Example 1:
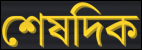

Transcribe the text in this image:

শেষদিক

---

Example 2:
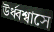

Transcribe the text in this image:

উর্ধ্বশ্বাসে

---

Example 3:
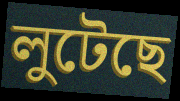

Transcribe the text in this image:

লুটেছে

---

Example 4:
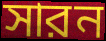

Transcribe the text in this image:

সারন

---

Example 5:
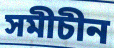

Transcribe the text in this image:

সমীচীন